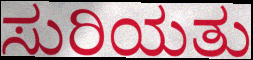
ಸುರಿಯತು